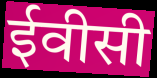
ईवीसी